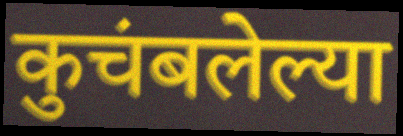
कुचंबलेल्या